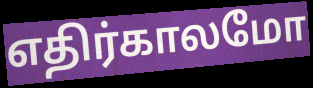
எதிர்காலமோ